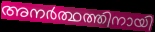
അനർത്ഥത്തിനായി